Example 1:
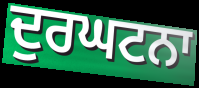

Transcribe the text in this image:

ਦੁਰਘਟਨਾ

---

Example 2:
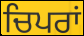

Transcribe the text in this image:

ਚਿਪਰਾਂ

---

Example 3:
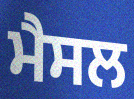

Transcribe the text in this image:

ਮੈਸਲ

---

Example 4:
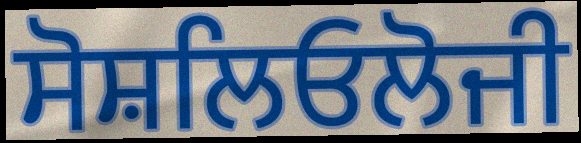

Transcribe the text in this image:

ਸੋਸ਼ਲਿਓਲੋਜੀ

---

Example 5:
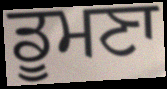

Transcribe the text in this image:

ਡੂਮਣਾ